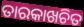
ତାରକାଖଚିତ